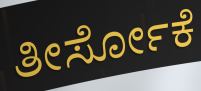
ತೀರ್ಸೋಕೆ